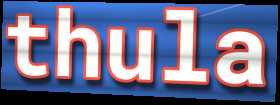
thula